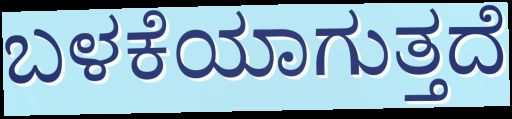
ಬಳಕೆಯಾಗುತ್ತದೆ